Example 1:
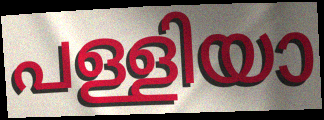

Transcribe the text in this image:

പള്ളിയാ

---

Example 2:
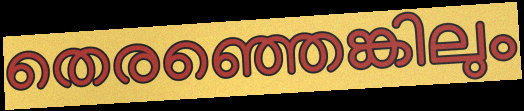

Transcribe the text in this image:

തെരഞ്ഞെങ്കിലും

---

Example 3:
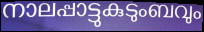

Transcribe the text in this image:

നാലപ്പാട്ടുകുടുംബവും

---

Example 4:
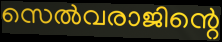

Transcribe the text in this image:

സെൽവരാജിന്റെ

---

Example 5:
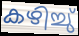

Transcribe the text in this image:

കഴിച്ചു്